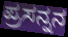
ಪ್ರಸನ್ನನ